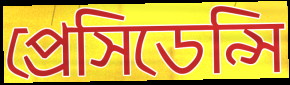
প্রেসিডেন্সি